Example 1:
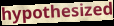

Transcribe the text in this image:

hypothesized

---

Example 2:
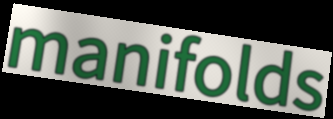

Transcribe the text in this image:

manifolds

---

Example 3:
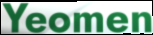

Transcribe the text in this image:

Yeomen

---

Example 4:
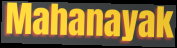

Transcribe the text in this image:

Mahanayak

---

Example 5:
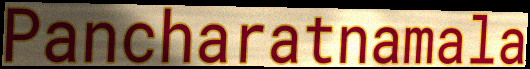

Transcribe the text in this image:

Pancharatnamala